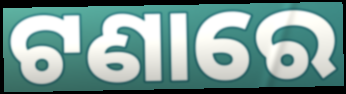
ଟଣାରେ